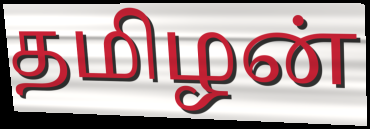
தமிழன்